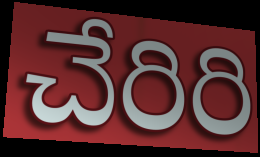
చేరిరి